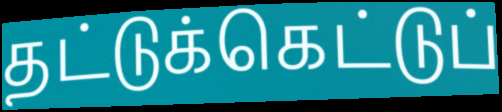
தட்டுக்கெட்டுப்